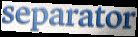
separator